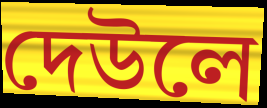
দেউলে